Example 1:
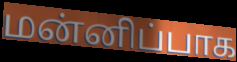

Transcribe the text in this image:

மன்னிப்பாக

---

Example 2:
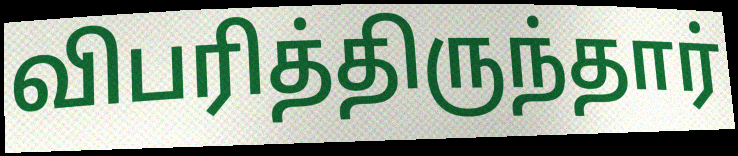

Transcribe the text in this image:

விபரித்திருந்தார்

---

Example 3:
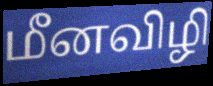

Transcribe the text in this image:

மீனவிழி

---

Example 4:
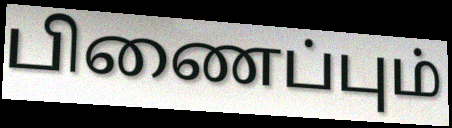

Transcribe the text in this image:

பிணைப்பும்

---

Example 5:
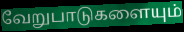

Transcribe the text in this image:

வேறுபாடுகளையும்